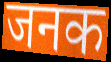
जनक